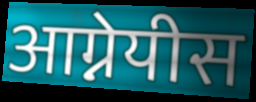
आग्नेयीस